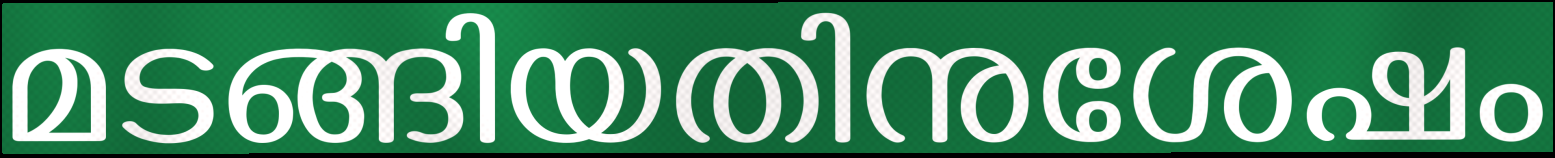
മടങ്ങിയതിനുശേഷം